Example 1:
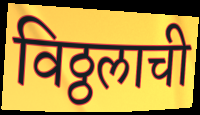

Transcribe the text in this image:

विठ्ठलाची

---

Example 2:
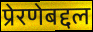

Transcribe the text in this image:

प्रेरणेबद्दल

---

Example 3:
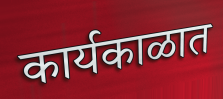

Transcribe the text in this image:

कार्यकाळात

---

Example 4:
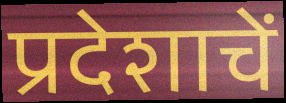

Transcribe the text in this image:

प्रदेशाचें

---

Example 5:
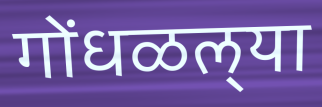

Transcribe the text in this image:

गोंधळल्या